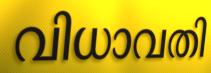
വിധാവതി